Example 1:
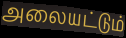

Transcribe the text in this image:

அலையட்டும்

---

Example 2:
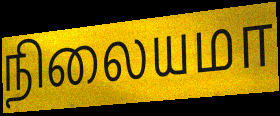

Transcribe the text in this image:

நிலையமா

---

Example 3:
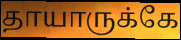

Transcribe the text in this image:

தாயாருக்கே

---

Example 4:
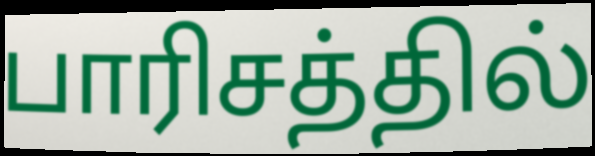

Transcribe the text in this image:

பாரிசத்தில்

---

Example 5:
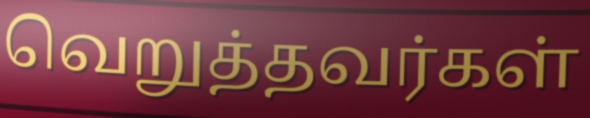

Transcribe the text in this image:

வெறுத்தவர்கள்